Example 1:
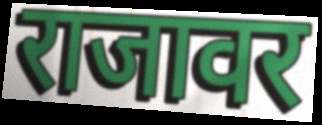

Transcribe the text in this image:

राजावर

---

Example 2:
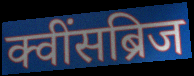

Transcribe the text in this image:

क्वींसब्रिज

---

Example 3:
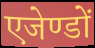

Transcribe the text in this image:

एजेण्डों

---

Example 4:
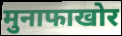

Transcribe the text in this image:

मुनाफाखोर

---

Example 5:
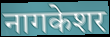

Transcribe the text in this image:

नागकेशर